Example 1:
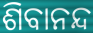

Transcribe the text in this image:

ଶିବାନନ୍ଦ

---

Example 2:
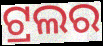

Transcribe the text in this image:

ଟ୍ରଲର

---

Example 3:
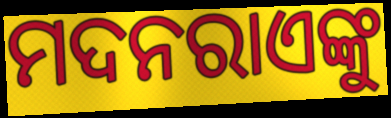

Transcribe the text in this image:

ମଦନରାଏଙ୍କୁ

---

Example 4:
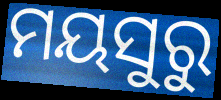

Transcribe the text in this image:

ମୟସୁରୁ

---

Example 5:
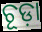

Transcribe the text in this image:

ଚୂଡ଼ା